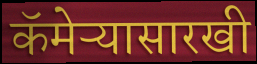
कॅमेऱ्यासारखी